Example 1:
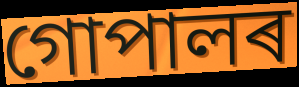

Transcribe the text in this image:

গোপালৰ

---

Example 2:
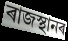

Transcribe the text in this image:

ৰাজস্থানৰ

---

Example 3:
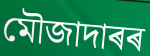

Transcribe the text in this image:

মৌজাদাৰৰ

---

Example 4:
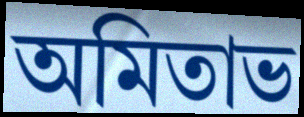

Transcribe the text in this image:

অমিতাভ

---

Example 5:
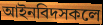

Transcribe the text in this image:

আইনবিদসকলে